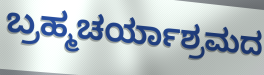
ಬ್ರಹ್ಮಚರ್ಯಾಶ್ರಮದ